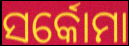
ସର୍କୋମା